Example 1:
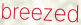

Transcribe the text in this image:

breezed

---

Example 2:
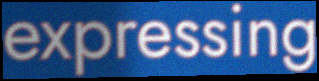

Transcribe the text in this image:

expressing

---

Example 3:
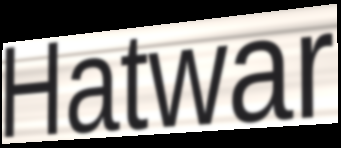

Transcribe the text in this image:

Hatwar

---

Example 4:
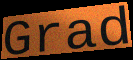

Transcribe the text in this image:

Grad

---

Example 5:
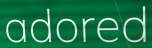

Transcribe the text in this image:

adored